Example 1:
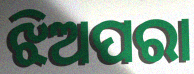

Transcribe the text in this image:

ଝିଅପରା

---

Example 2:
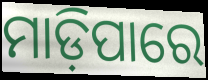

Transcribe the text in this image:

ମାଡ଼ିପାରେ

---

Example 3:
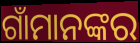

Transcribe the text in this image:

ଗାଁମାନଙ୍କର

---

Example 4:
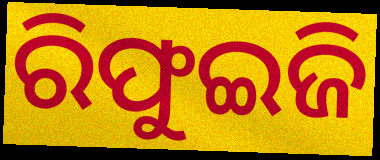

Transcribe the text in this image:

ରିଫୁଇଜି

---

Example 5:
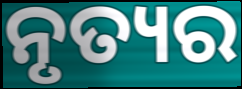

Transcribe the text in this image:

ନୃତ୍ୟର